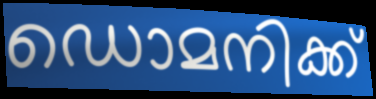
ഡൊമനിക്ക്